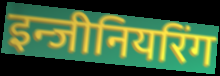
इन्जीनियरिंग